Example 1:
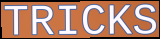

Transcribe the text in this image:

TRICKS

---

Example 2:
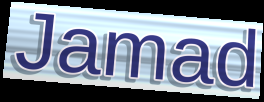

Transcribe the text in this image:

Jamad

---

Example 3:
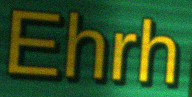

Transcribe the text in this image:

Ehrh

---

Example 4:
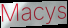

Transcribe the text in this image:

Macys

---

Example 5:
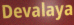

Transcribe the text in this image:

Devalaya